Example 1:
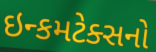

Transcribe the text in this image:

ઇન્કમટેક્સનો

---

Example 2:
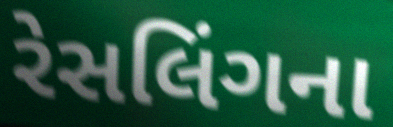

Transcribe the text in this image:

રેસલિંગના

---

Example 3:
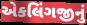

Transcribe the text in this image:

એકલિંગજીનું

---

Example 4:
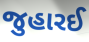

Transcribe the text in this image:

જુહારઈ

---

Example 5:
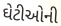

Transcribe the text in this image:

ઘેટીઓની